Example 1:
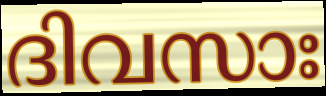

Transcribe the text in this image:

ദിവസാഃ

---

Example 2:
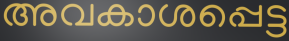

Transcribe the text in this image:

അവകാശപ്പെട്ട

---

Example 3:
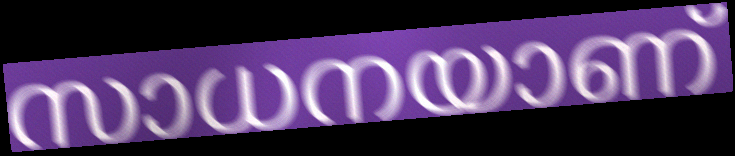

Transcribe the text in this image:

സാധനയാണ്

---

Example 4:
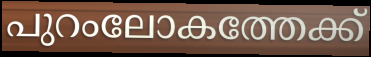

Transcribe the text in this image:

പുറംലോകത്തേക്ക്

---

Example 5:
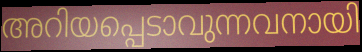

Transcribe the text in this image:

അറിയപ്പെടാവുന്നവനായി